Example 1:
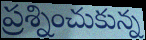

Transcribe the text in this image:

ప్రశ్నించుకున్న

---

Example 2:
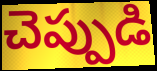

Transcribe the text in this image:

చెప్పుడి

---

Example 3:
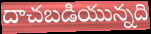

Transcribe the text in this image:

దాచబడియున్నది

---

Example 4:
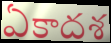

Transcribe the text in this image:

ఏకాదశ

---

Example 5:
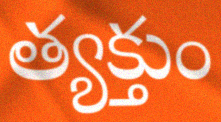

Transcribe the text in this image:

త్యక్తుం